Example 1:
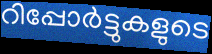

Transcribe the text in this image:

റിപ്പോർട്ടുകളുടെ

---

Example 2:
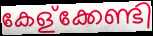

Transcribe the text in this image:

കേള്ക്കേണ്ടി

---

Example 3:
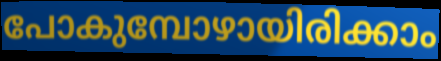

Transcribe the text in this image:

പോകുമ്പോഴായിരിക്കാം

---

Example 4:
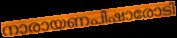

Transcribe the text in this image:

നാരായണപിഷാരോടി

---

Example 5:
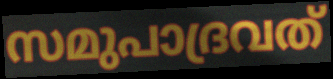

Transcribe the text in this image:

സമുപാദ്രവത്